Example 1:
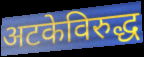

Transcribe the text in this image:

अटकेविरुद्ध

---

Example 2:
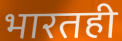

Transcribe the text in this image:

भारतही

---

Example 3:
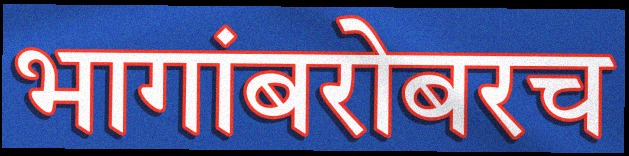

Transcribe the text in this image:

भागांबरोबरच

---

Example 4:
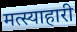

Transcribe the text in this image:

मत्स्याहारी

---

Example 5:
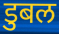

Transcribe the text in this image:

डुबल